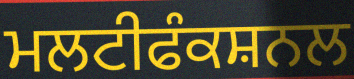
ਮਲਟੀਫੰਕਸ਼ਨਲ